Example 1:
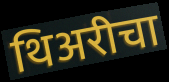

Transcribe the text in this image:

थिअरीचा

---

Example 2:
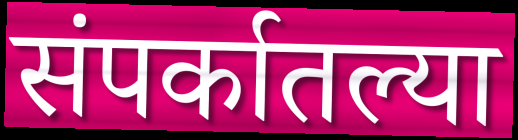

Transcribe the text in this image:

संपर्कातल्या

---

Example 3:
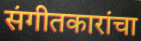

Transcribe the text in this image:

संगीतकारांचा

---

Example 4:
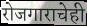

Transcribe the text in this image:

रोजगाराचेही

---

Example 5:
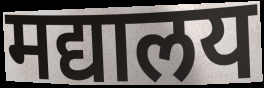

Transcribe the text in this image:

मद्यालय